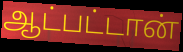
ஆட்பட்டான்